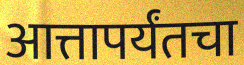
आत्तापर्यंतचा